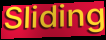
Sliding